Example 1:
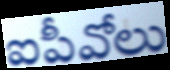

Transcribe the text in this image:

ఐపీవోలు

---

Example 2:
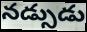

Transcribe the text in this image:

నడ్సుడు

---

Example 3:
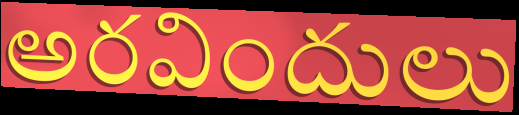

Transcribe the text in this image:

అరవిందులు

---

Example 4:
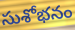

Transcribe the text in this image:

సుశోభనం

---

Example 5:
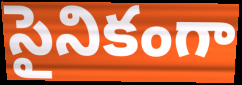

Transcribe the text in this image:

సైనికంగా